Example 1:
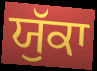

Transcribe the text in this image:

ਯੁੱਕਾ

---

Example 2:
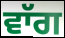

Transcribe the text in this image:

ਵਾੱਗ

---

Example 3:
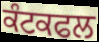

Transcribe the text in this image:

ਕੰਟਕਫਲ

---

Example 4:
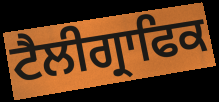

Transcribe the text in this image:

ਟੈਲੀਗ੍ਰਾਫਿਕ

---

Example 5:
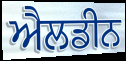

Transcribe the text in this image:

ਐਲਡੀਨ